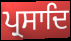
ਪ੍ਰਸਾਦਿ